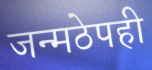
जन्मठेपही